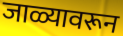
जाळ्यावरून